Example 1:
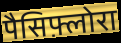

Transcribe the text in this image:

पैसिफ़्लोरा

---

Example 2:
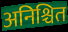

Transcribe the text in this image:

अनिश्चित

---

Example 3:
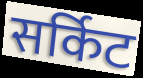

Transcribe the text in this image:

सर्किट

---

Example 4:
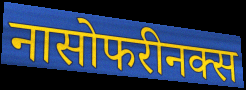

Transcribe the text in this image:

नासोफरीनक्स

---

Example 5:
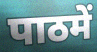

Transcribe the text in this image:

पाठमें